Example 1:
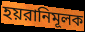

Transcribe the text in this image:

হয়রানিমূলক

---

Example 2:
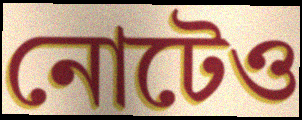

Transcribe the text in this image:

নোটেও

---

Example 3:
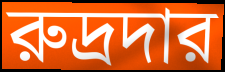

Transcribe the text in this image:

রুদ্রদার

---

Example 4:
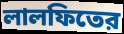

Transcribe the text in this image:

লালফিতের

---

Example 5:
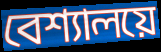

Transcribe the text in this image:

বেশ্যালয়ে